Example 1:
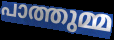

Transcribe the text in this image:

പാത്തുമ്മ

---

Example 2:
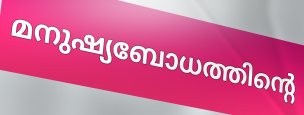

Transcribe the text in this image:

മനുഷ്യബോധത്തിന്റെ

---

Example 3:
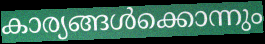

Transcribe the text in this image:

കാര്യങ്ങൾക്കൊന്നും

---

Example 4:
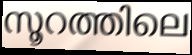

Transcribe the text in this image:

സൂറത്തിലെ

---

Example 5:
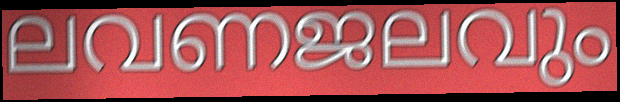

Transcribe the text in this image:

ലവണജലവും